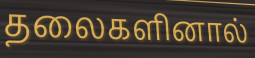
தலைகளினால்